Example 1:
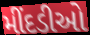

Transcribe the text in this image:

મીંદડીઓ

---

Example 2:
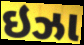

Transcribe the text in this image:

ઇઝા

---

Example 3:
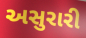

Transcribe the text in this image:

અસુરારી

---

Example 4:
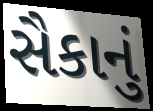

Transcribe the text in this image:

સૈકાનું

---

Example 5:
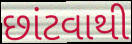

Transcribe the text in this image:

છાંટવાથી